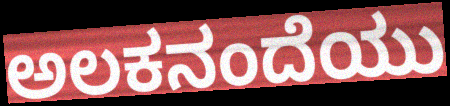
ಅಲಕನಂದೆಯು